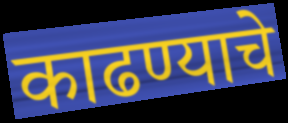
काढण्याचे